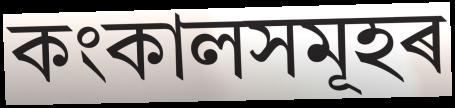
কংকালসমূহৰ